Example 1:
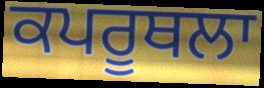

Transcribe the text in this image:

ਕਪਰੂਥਲਾ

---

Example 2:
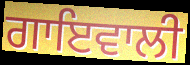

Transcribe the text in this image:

ਗਾਇਵਾਲੀ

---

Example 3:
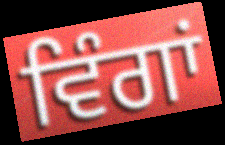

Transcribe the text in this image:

ਵਿੰਗਾਂ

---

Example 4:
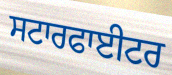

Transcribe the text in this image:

ਸਟਾਰਫਾਈਟਰ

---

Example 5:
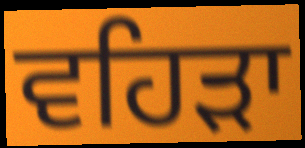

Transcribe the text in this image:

ਵਹਿੜਾ